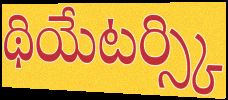
థియేటర్స్కి